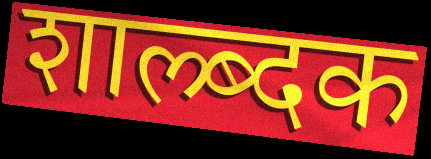
शाल्ब्दक